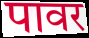
पावर